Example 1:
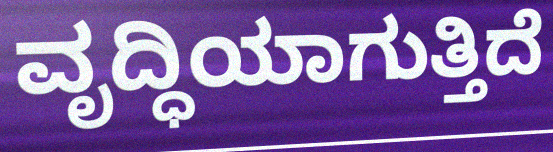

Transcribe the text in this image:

ವೃದ್ಧಿಯಾಗುತ್ತಿದೆ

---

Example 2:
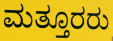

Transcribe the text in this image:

ಮತ್ತೂರರು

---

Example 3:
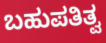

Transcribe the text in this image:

ಬಹುಪತಿತ್ವ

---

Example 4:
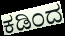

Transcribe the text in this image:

ಕಡಿಂದ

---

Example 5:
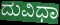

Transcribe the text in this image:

ದುವಿಧಾ